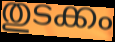
തുടക്കം